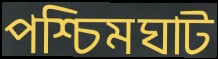
পশ্চিমঘাট